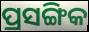
ପ୍ରସଙ୍ଗିକ